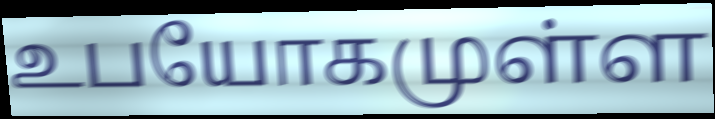
உபயோகமுள்ள